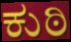
ಕುಠಿ